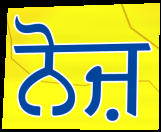
ਨੋਜ਼